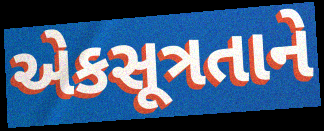
એકસૂત્રતાને